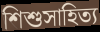
শিশুসাহিত্য